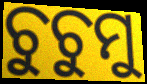
ଚୁଚୁମୁ